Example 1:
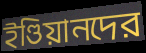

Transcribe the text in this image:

ইণ্ডিয়ানদের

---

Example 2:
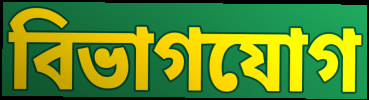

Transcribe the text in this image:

বিভাগযোগ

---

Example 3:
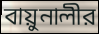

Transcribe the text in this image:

বায়ুনালীর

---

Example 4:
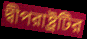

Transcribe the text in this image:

দ্বীপরাষ্ট্রটির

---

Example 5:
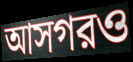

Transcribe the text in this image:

আসগরও